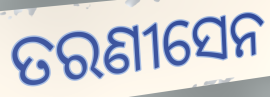
ତରଣୀସେନ